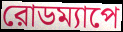
রোডম্যাপে